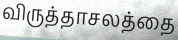
விருத்தாசலத்தை